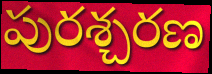
పురశ్చరణ